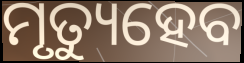
ମୃତ୍ୟୁହେବ